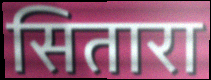
सितारा